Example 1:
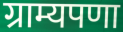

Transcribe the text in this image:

ग्राम्यपणा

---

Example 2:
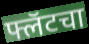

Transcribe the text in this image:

फ्लॅटचा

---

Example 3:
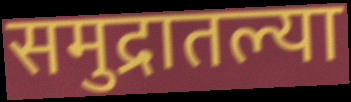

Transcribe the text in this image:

समुद्रातल्या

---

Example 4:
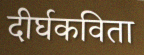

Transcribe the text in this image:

दीर्घकविता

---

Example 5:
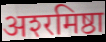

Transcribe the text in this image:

अश्रमिष्ठा